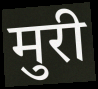
मुरी